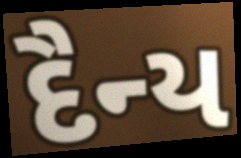
દૈન્ય